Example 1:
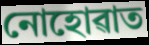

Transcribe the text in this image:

নোহোৱাত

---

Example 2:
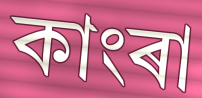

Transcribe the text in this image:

কাংৰা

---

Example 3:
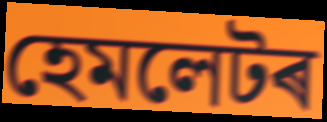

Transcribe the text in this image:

হেমলেটৰ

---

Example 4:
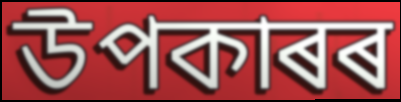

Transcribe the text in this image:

উপকাৰৰ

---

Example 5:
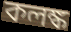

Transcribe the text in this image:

কলঙ্ক